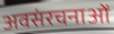
अवसंरचनाओं